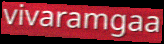
vivaramgaa